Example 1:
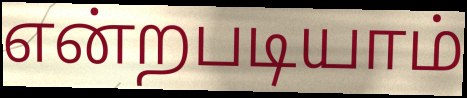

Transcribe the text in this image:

என்றபடியாம்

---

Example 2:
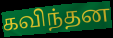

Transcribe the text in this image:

கவிந்தன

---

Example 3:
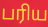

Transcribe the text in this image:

பரிய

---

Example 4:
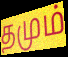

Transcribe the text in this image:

தமும்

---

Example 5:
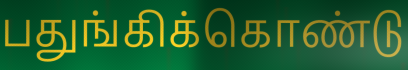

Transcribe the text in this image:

பதுங்கிக்கொண்டு